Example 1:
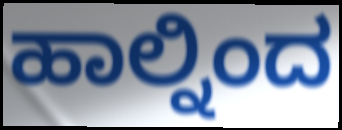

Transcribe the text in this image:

ಹಾಲ್ನಿಂದ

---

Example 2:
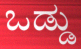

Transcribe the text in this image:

ಒಡ್ಡು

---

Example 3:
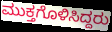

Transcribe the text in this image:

ಮುಕ್ತಗೊಳಿಸಿದ್ದರು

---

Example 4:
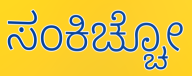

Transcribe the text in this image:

ಸಂಕಿಚ್ಚೋ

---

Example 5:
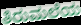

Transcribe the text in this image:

ತಿರುಮಲೆಯ